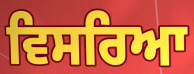
ਵਿਸਰਿਆ